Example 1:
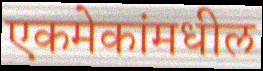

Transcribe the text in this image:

एकमेकांमधील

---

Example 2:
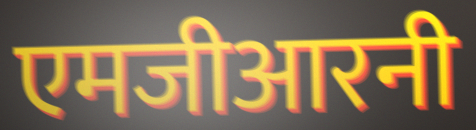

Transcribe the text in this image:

एमजीआरनी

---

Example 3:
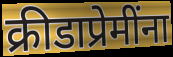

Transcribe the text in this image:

क्रीडाप्रेमींना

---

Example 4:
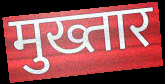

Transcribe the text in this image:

मुख्तार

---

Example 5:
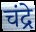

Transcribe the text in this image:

चंद्रे